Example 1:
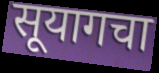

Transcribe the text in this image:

सूयागचा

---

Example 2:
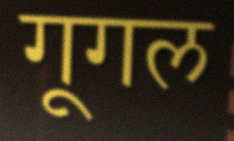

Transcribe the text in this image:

गूगल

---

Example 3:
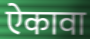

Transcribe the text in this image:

ऐकावा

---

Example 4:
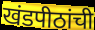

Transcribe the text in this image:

खंडपीठांची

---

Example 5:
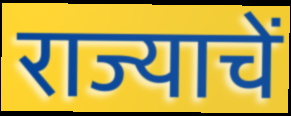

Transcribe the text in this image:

राज्याचें